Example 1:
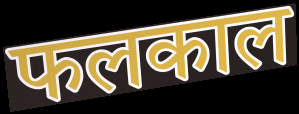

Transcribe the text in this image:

फलकाल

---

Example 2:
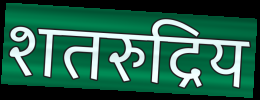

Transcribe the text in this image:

शतरुद्रिय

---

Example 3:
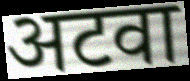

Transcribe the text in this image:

अटवा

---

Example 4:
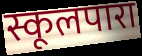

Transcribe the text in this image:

स्कूलपारा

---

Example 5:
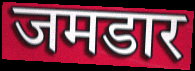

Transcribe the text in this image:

जमडार